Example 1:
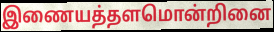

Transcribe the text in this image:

இணையத்தளமொன்றினை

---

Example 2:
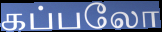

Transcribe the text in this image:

கப்பலோ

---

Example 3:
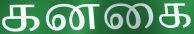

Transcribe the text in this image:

கனகை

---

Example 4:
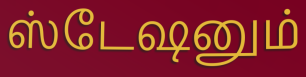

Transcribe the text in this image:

ஸ்டேஷனும்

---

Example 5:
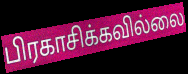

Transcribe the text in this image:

பிரகாசிக்கவில்லை